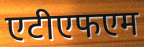
एटीएफएम